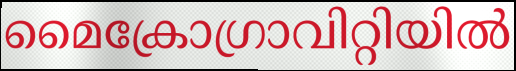
മൈക്രോഗ്രാവിറ്റിയിൽ